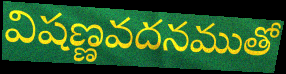
విషణ్ణవదనముతో